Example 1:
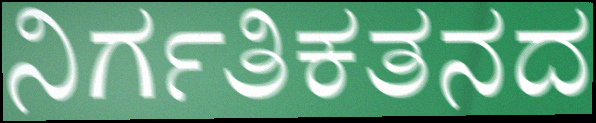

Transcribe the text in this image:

ನಿರ್ಗತಿಕತನದ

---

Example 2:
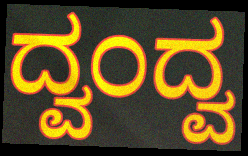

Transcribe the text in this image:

ದ್ವಂದ್ವ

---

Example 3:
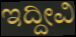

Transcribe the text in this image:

ಇದ್ದೀವಿ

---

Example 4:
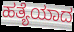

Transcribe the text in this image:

ಹತ್ಯೆಯಾದ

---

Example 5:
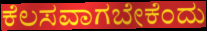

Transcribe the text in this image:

ಕೆಲಸವಾಗಬೇಕೆಂದು